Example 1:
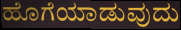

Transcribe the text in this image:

ಹೊಗೆಯಾಡುವುದು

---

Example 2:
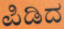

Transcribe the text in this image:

ಪಿಡಿದ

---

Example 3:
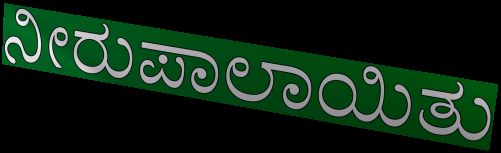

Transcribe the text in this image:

ನೀರುಪಾಲಾಯಿತು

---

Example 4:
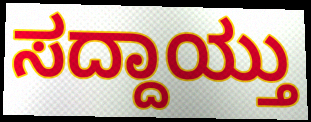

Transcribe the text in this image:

ಸದ್ದಾಯ್ತು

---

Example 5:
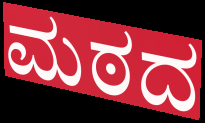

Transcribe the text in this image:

ಮಠದ